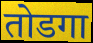
तोडगा